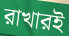
রাখারই